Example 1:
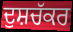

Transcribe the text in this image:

ਦੁਸ਼ਚੱਕਰ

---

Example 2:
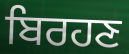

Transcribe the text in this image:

ਬਿਰਹਣ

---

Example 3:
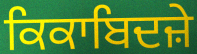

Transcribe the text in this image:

ਕਿਕਾਬਿਦਜ਼ੇ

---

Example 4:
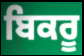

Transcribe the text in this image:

ਬਿਕਰੂ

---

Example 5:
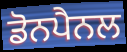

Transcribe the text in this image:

ਡੋਨਪੈਨਲ